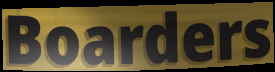
Boarders